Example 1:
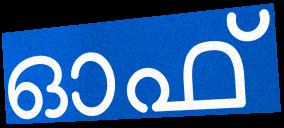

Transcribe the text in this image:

ഓഫ്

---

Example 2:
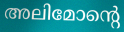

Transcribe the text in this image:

അലിമോന്റെ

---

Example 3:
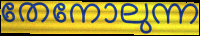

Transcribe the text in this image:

തേനോലുന്ന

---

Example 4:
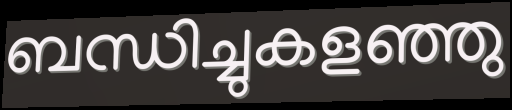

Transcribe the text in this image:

ബന്ധിച്ചുകളഞ്ഞു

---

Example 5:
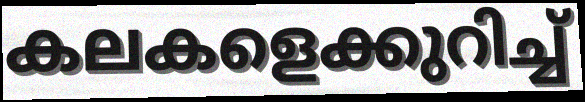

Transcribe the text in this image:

കലകളെക്കുറിച്ച്